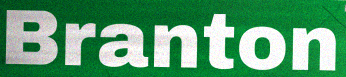
Branton